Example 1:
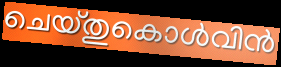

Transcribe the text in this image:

ചെയ്തുകൊൾവിൻ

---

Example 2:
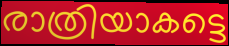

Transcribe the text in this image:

രാത്രിയാകട്ടെ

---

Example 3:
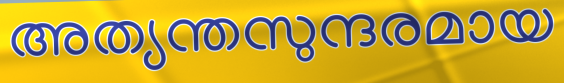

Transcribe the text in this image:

അത്യന്തസുന്ദരമായ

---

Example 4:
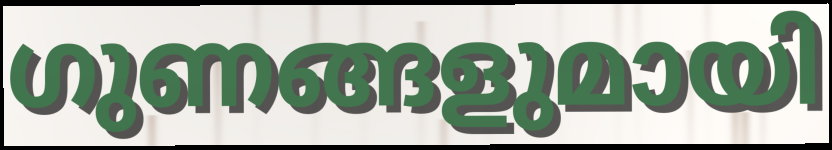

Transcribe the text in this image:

ഗുണങ്ങളുമായി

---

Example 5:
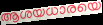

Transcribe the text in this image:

ആശയധാരയെ